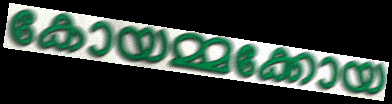
കോയമ്മക്കോയ